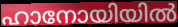
ഹാനോയിയിൽ